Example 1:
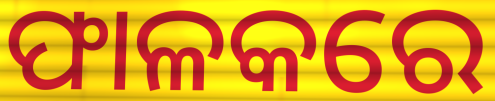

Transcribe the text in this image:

ଫାଳକରେ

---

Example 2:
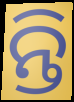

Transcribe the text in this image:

ନ୍ତି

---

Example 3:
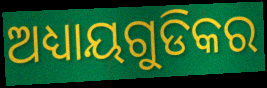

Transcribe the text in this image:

ଅଧ୍ୟାୟଗୁଡିକର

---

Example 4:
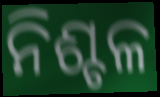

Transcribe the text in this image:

ନିଶ୍ଚଳ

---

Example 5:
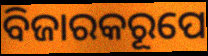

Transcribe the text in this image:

ବିଜାରକରୂପେ